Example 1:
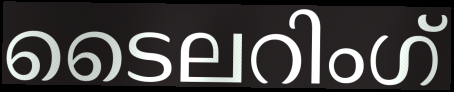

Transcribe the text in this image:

ടൈലറിംഗ്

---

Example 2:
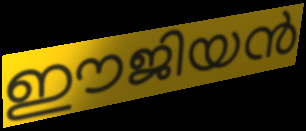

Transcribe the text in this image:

ഈജിയൻ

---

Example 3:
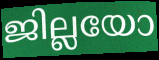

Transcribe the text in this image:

ജില്ലയോ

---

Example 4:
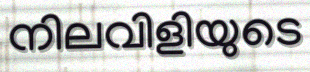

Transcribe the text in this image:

നിലവിളിയുടെ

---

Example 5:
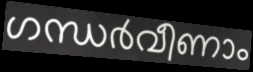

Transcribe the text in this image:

ഗന്ധർവീണാം